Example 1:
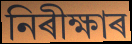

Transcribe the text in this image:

নিৰীক্ষাৰ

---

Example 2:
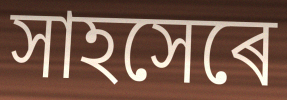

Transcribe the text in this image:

সাহসেৰে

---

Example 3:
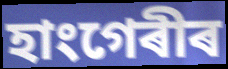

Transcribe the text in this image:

হাংগেৰীৰ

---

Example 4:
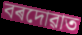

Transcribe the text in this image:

বৰদোৱাত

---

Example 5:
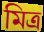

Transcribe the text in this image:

মিত্ৰ